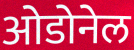
ओडोनेल